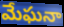
మేఘనా